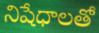
నిషేధాలతో